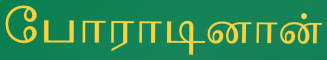
போராடினான்